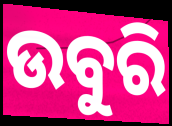
ଉବୁରି